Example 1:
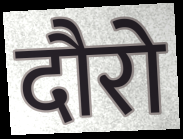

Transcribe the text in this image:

दौरो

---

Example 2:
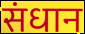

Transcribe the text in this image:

संधान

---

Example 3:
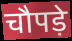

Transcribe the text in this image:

चौपड़े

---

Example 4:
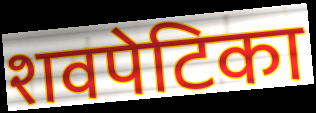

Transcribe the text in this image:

शवपेटिका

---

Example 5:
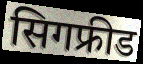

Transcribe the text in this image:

सिगफ्रीड